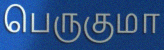
பெருகுமா